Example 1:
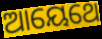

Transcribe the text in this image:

ଆୟେଥେ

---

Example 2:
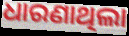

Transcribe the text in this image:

ଧାରଣାଥିଲା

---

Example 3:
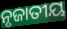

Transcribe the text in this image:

ନୃଜାତୀୟ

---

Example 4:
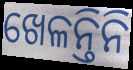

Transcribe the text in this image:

ଖେଳନ୍ତିନି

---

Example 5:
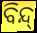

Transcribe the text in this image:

ବିନ୍ଦ୍